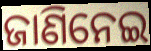
ଜାଣିନେଇ